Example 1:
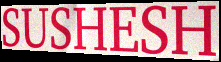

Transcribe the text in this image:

SUSHESH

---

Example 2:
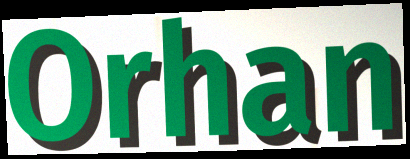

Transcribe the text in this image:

Orhan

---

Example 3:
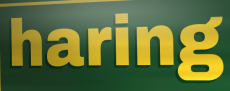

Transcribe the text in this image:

haring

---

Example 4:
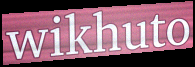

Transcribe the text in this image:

wikhuto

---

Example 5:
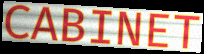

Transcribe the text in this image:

CABINET